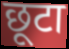
छूटा